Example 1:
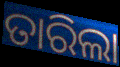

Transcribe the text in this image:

ତାରିଲା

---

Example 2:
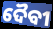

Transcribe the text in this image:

ଦୈବୀ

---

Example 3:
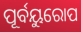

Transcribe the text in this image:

ପୂର୍ବୟୁରୋପ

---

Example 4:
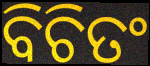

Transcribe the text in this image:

ବିଚିତଂ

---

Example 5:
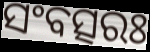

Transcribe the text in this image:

ସଂବତ୍ସରଃ